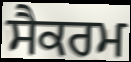
ਸੈਕਰਮ